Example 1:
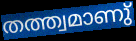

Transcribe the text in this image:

തത്ത്വമാണു്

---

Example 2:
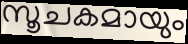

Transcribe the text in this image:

സൂചകമായും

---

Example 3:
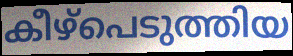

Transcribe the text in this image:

കീഴ്പെടുത്തിയ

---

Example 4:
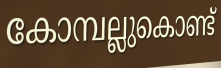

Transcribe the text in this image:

കോമ്പല്ലുകൊണ്ട്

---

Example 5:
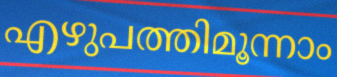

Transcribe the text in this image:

എഴുപത്തിമൂന്നാം